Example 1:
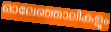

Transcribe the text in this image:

ഓലേഞ്ഞാലികളും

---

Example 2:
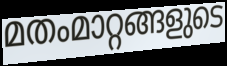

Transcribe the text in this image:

മതംമാറ്റങ്ങളുടെ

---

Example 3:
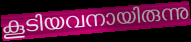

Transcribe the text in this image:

കൂടിയവനായിരുന്നു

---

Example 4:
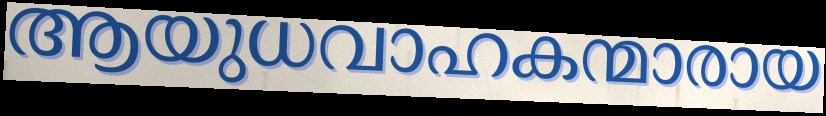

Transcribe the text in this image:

ആയുധവാഹകന്മാരായ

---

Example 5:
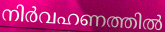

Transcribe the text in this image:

നിർവഹണത്തിൽ